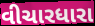
વીચારધારા